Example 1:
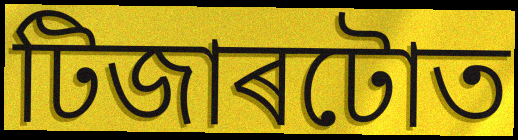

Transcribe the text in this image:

টিজাৰটোত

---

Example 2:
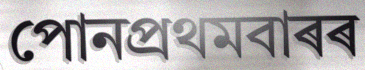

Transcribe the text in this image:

পোনপ্ৰথমবাৰৰ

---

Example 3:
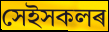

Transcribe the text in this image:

সেইসকলৰ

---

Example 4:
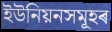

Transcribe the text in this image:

ইউনিয়নসমূহৰ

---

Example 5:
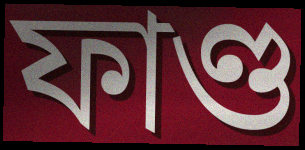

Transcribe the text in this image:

ফাণ্ড